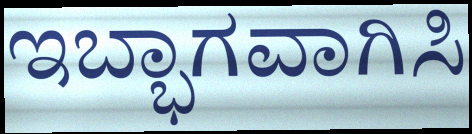
ಇಬ್ಭಾಗವಾಗಿಸಿ